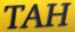
TAH